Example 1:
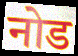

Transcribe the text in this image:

नोड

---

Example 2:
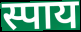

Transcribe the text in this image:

स्पाय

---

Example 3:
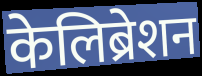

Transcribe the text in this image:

केलिब्रेशन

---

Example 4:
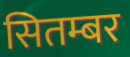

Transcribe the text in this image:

सितम्बर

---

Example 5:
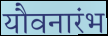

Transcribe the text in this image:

यौवनारंभ